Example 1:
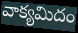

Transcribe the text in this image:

వాక్యమిదం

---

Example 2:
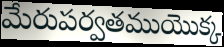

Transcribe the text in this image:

మేరుపర్వతముయొక్క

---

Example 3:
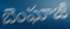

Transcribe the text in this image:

బెంఘాజీ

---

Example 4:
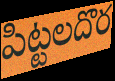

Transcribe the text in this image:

పిట్టలదొర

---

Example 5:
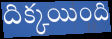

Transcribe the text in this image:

దిక్కయింది